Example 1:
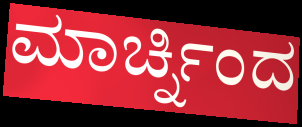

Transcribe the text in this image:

ಮಾರ್ಚ್ನಿಂದ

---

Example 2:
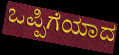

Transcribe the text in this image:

ಒಪ್ಪಿಗೆಯಾದ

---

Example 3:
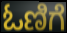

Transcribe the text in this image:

ಓಣಿಗೆ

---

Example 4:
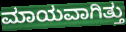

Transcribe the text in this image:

ಮಾಯವಾಗಿತ್ತು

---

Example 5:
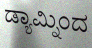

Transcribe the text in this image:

ಡ್ಯಾಮ್ನಿಂದ